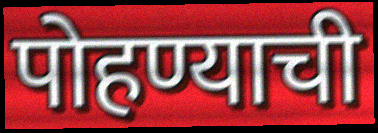
पोहण्याची